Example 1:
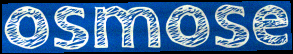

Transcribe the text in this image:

osmose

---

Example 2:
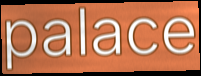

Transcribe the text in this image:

palace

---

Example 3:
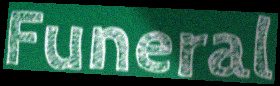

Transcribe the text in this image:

Funeral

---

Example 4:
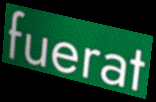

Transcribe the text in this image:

fuerat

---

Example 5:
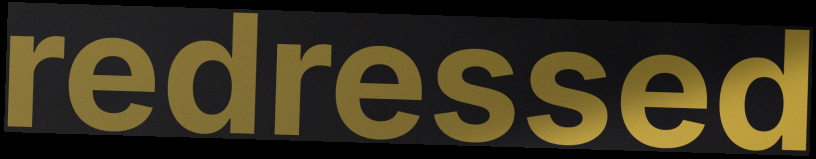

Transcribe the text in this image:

redressed